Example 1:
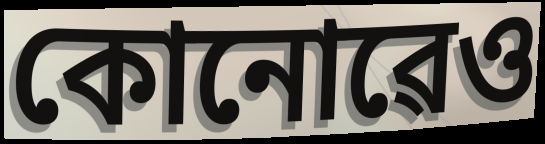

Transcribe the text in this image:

কোনোৱেও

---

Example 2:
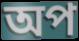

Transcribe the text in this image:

অপ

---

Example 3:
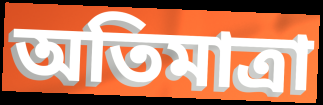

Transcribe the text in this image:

অতিমাত্ৰা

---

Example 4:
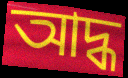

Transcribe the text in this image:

আদ্ধ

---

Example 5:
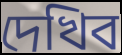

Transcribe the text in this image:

দেখিব